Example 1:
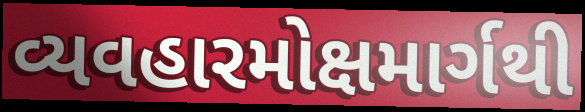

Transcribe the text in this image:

વ્યવહારમોક્ષમાર્ગથી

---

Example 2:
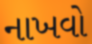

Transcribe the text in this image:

નાખવો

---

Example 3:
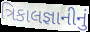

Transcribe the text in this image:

ત્રિકાલજ્ઞાનીનું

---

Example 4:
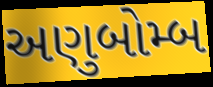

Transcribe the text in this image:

અણુબોમ્બ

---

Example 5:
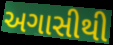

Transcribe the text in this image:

અગાસીથી